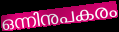
ഒന്നിനുപകരം